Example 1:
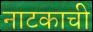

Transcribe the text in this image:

नाटकाची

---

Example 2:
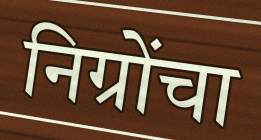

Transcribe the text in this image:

निग्रोंचा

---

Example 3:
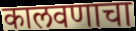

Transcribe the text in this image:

कालवणाचा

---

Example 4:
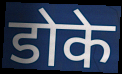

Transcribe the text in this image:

डोके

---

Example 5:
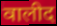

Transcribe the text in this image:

वालीद